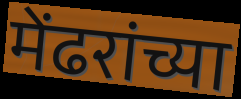
मेंढरांच्या